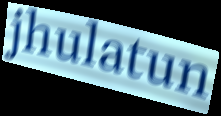
jhulatun